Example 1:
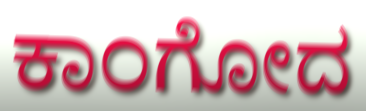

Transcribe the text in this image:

ಕಾಂಗೋದ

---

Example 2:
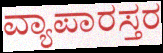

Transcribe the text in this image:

ವ್ಯಾಪಾರಸ್ತರ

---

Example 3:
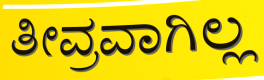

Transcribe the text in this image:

ತೀವ್ರವಾಗಿಲ್ಲ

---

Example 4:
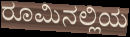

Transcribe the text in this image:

ರೂಮಿನಲ್ಲಿಯ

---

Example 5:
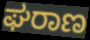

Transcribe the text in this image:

ಘರಾಣ